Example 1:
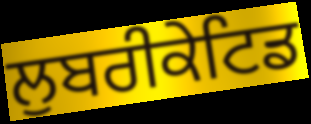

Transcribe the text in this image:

ਲੁਬਰੀਕੇਟਿਡ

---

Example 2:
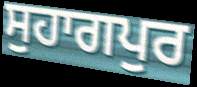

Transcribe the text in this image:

ਸੁਹਾਗਪੁਰ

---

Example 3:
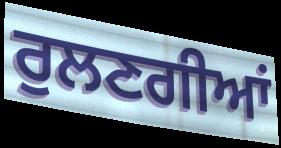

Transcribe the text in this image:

ਰੁਲਣਗੀਆਂ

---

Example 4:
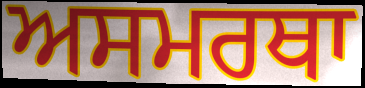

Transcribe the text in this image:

ਅਸਮਰਥਾ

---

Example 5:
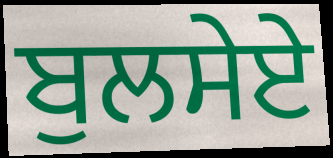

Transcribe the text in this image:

ਬੁਲਸੇਏ